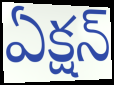
ఏక్షన్